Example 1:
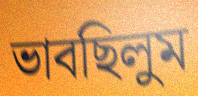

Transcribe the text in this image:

ভাবছিলুম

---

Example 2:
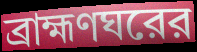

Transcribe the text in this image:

ব্রাহ্মণঘরের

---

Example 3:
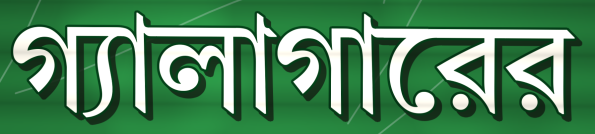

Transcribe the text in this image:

গ্যালাগারের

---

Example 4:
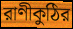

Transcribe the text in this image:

রাণীকুঠির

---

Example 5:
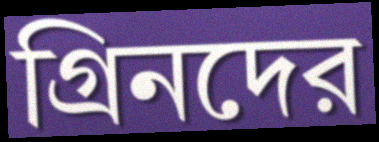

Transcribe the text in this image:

গ্রিনদের